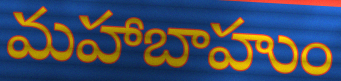
మహాబాహుం